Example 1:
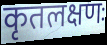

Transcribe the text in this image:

कृतलक्षणः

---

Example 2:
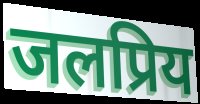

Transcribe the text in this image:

जलप्रिय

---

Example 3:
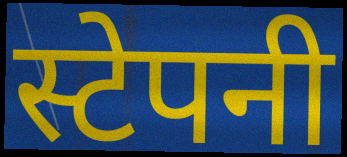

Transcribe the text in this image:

स्टेपनी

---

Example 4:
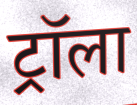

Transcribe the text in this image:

ट्रॉला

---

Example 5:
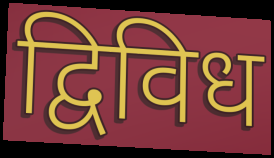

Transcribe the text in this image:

द्विविध